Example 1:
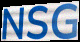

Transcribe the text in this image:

NSG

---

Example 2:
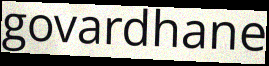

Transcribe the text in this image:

govardhane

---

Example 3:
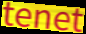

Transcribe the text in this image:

tenet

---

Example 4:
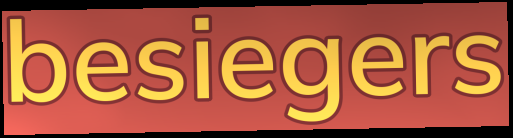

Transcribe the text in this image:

besiegers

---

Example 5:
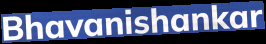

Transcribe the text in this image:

Bhavanishankar